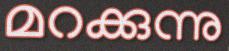
മറക്കുന്നു